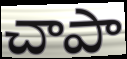
చాపా